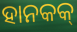
ହାନକକ୍